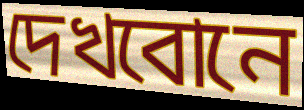
দেখবোনে